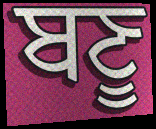
ਬਣੂ